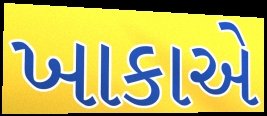
ખાકાએ